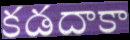
కడదాకా